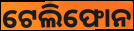
ଟେଲିଫୋନ